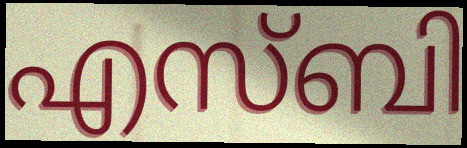
എസ്ബി